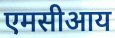
एमसीआय